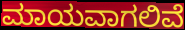
ಮಾಯವಾಗಲಿವೆ